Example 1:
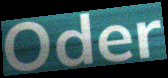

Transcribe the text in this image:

Oder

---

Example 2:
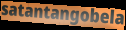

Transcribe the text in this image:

satantangobela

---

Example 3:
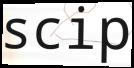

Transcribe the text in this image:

scip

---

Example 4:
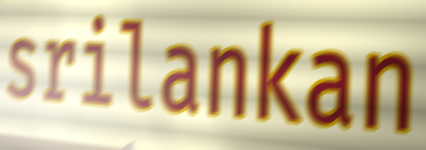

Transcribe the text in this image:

srilankan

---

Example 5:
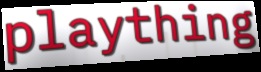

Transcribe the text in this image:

plaything